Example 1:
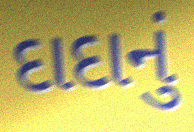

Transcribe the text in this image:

દાદાનું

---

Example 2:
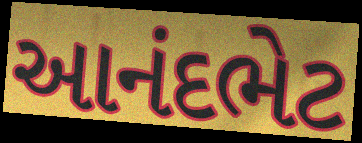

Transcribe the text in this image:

આનંદભેટ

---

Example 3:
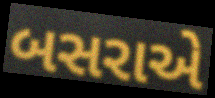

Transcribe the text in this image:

બસરાએ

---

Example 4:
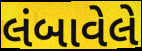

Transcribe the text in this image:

લંબાવેલે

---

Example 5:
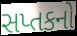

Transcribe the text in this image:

સપ્તકનો